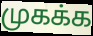
முகக்க